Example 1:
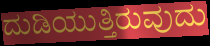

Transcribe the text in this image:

ದುಡಿಯುತ್ತಿರುವುದು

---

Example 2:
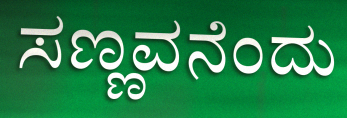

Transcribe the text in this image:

ಸಣ್ಣವನೆಂದು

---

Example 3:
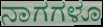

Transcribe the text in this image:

ನಾಗಗಳೂ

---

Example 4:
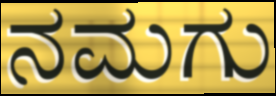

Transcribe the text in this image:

ನಮಗು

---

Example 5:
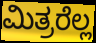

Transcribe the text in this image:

ಮಿತ್ರರೆಲ್ಲ